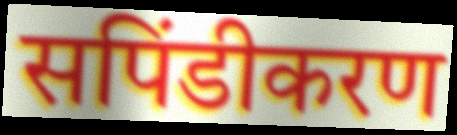
सपिंडीकरण